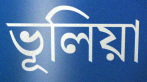
ভূলিয়া